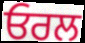
ਓਰਲ